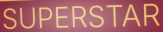
SUPERSTAR